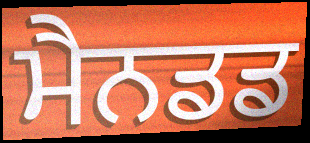
ਮੈਨਡਡ